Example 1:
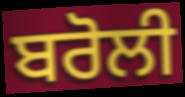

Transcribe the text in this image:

ਬਰੋਲੀ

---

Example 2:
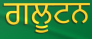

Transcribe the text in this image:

ਗਲੂਟਨ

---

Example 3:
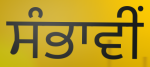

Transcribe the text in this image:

ਸੰਭਾਵੀਂ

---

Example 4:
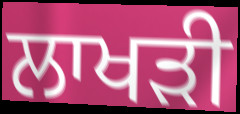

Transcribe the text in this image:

ਲਾਖੜੀ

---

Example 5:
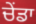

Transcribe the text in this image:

ਚੇਂਡਾ